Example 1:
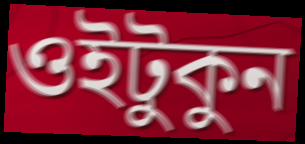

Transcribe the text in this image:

ওইটুকুন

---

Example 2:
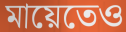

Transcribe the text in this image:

মায়েতেও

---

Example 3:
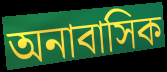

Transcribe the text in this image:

অনাবাসিক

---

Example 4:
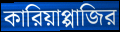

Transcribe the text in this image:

কারিয়াপ্পাজির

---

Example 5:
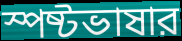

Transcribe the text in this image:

স্পষ্টভাষার